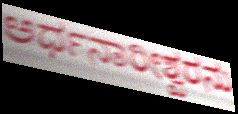
ಅರ್ಧನಾರೀಶ್ವರನು